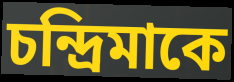
চন্দ্রিমাকে